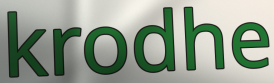
krodhe